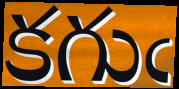
కగుఁ